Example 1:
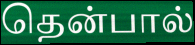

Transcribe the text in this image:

தென்பால்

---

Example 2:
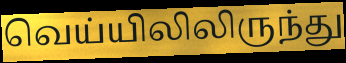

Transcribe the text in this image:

வெய்யிலிலிருந்து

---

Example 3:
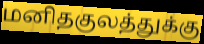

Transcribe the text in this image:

மனிதகுலத்துக்கு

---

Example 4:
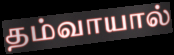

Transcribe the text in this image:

தம்வாயால்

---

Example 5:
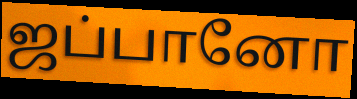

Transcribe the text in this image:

ஜப்பானோ